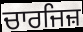
ਚਾਰਜਿਜ਼